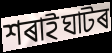
শৰাইঘাটৰ